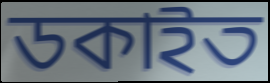
ডকাইত